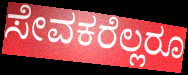
ಸೇವಕರೆಲ್ಲರೂ